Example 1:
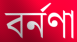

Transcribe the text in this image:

বর্নণা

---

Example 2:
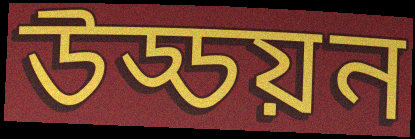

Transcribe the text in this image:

উড্ডয়ন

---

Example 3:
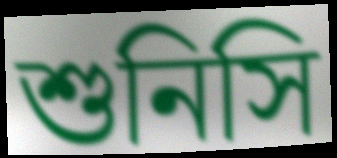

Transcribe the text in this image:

শুনিসি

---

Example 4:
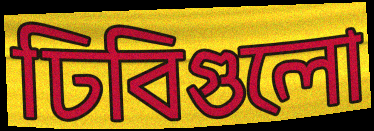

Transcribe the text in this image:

ঢিবিগুলো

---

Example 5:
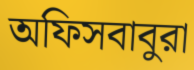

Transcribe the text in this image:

অফিসবাবুরা